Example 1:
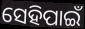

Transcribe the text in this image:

ସେହିପାଇଁ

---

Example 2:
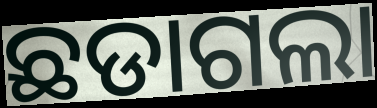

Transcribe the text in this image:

ଛଡାଗଲା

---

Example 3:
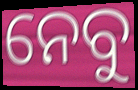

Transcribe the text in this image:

ନେବୁ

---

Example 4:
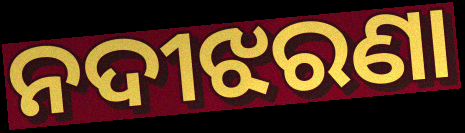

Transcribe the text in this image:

ନଦୀଝରଣା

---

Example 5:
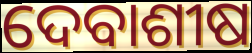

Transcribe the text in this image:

ଦେବାଶୀଷ